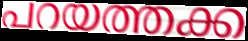
പറയത്തക്ക